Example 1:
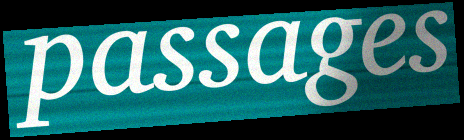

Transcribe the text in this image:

passages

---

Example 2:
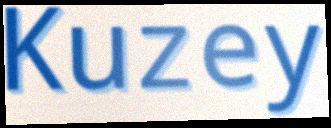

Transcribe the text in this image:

Kuzey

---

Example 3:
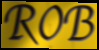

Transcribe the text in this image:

ROB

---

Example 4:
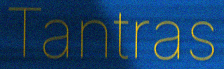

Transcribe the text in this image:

Tantras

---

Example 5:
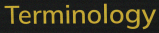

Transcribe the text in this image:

Terminology